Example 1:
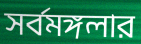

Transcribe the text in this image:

সর্বমঙ্গলার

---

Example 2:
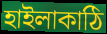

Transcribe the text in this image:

হাইলাকাঠি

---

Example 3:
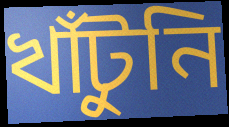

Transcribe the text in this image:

খাঁটুনি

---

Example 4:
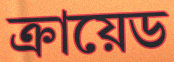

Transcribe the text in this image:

ক্রায়েড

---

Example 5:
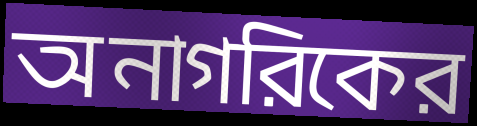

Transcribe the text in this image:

অনাগরিকের